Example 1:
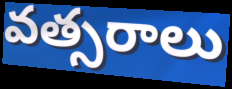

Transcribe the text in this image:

వత్సరాలు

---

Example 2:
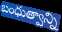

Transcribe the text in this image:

బంధుత్వాన్ని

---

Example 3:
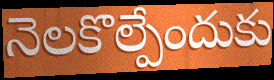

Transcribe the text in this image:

నెలకొల్పేందుకు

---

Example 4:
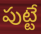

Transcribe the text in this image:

పుట్టే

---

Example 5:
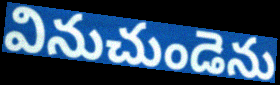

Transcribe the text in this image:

వినుచుండెను